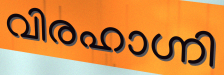
വിരഹാഗ്നി